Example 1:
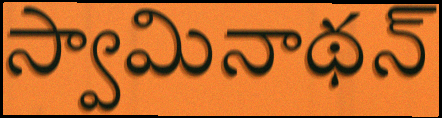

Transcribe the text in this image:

స్వామినాథన్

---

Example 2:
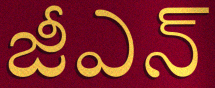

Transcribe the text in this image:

జీఎన్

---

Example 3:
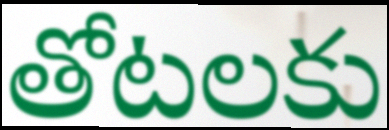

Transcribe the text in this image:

తోటలకు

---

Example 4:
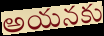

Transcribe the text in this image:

అయనకు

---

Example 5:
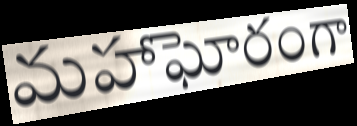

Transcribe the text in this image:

మహాఘోరంగా